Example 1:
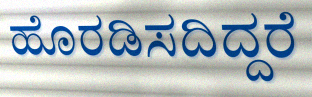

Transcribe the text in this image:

ಹೊರಡಿಸದಿದ್ದರೆ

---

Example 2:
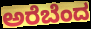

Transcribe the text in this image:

ಅರೆಬೆಂದ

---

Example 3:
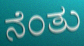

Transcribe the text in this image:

ನೆಂತು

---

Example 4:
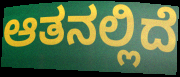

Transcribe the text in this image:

ಆತನಲ್ಲಿದೆ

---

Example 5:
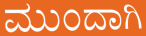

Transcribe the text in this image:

ಮುಂದಾಗಿ